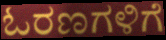
ಓರಣಗಳಿಗೆ